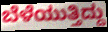
ಬೆಳೆಯುತ್ತಿದ್ದು